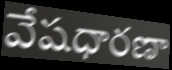
వేషధారణా